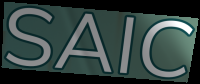
SAIC